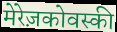
मेरेज़कोवस्की